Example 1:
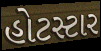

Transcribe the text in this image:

હોટસ્ટાર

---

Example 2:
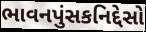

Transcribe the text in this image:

ભાવનપુંસકનિદ્દેસો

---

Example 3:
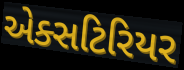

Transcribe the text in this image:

એક્સટિરિયર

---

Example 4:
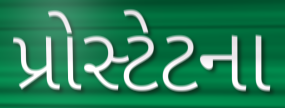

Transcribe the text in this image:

પ્રોસ્ટેટના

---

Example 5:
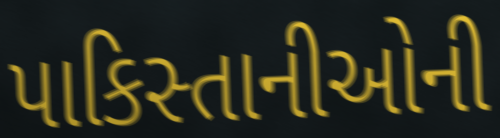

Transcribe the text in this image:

પાકિસ્તાનીઓની